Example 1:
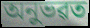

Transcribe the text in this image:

অনুভৱত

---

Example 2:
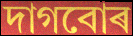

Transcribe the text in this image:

দাগবোৰ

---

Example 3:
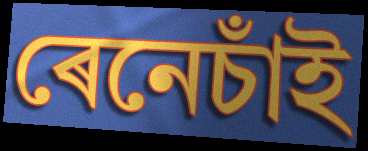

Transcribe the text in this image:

ৰেনেচাঁই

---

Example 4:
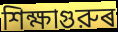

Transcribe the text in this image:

শিক্ষাগুৰুৰ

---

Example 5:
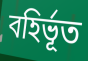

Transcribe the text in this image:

বহিৰ্ভূত